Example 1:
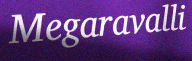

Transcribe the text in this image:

Megaravalli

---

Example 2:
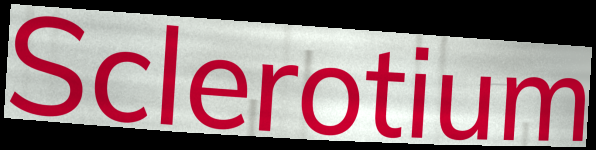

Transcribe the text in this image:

Sclerotium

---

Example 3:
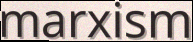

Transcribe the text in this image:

marxism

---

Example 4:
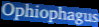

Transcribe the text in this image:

Ophiophagus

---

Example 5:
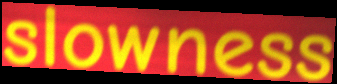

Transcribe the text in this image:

slowness